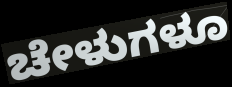
ಚೇಳುಗಳೂ